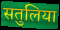
सतुलिया